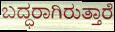
ಬದ್ಧರಾಗಿರುತ್ತಾರೆ